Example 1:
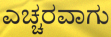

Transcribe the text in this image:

ಎಚ್ಚರವಾಗು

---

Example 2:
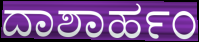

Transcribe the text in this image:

ದಾಶಾರ್ಹಂ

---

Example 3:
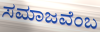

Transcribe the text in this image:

ಸಮಾಜವೆಂಬ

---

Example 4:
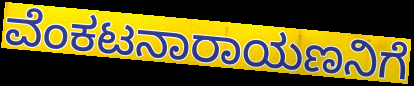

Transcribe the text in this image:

ವೆಂಕಟನಾರಾಯಣನಿಗೆ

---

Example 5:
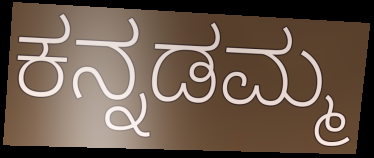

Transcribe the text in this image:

ಕನ್ನಡಮ್ಮ